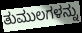
ತುಮುಲಗಳನ್ನು